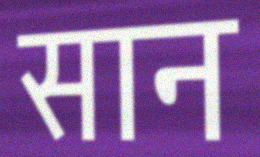
सान